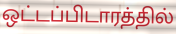
ஒட்டப்பிடாரத்தில்